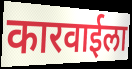
कारवाईला